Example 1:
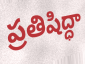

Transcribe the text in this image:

ప్రతిషిద్ధా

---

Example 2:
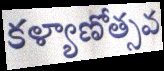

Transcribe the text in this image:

కళ్యాణోత్సవ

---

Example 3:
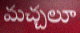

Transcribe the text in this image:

మచ్చలూ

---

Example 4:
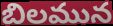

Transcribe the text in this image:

బిలమున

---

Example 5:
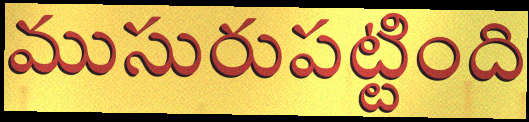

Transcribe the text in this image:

ముసురుపట్టింది